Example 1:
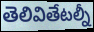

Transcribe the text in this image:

తెలివితేటల్నీ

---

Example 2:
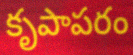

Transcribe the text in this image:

కృపాపరం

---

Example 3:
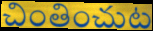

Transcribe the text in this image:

చింతించుట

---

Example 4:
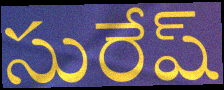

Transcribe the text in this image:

సురేష్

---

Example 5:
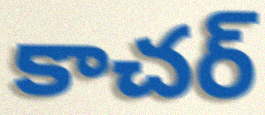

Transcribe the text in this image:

కాచర్